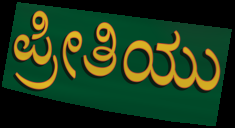
ಪ್ರೀತಿಯು